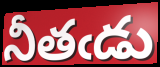
నీతఁడు